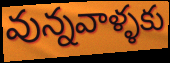
వున్నవాళ్ళకు